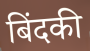
बिंदकी